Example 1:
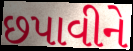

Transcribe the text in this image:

છપાવીને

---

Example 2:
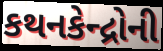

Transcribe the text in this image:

કથનકેન્દ્રોની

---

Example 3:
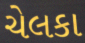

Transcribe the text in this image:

ચેલકા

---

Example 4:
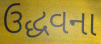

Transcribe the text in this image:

ઉદ્ધવના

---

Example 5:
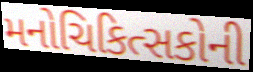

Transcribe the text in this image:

મનોચિકિત્સકોની